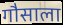
गौसाला